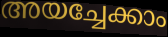
അയച്ചേക്കാം